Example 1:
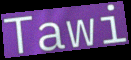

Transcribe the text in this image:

Tawi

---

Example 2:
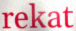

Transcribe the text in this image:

rekat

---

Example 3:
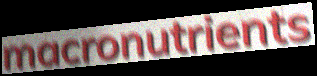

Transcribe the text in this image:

macronutrients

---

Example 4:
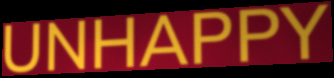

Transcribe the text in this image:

UNHAPPY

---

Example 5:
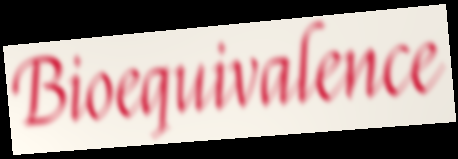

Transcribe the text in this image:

Bioequivalence